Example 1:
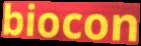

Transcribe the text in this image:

biocon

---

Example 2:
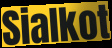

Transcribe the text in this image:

Sialkot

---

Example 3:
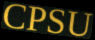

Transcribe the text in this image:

CPSU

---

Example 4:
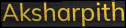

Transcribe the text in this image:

Aksharpith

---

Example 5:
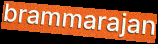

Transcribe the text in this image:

brammarajan